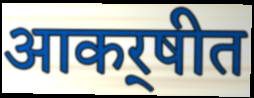
आकर्षीत